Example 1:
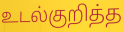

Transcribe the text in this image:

உடல்குறித்த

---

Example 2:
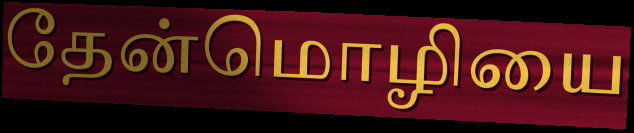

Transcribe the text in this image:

தேன்மொழியை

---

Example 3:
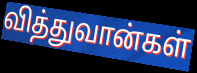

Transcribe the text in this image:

வித்துவான்கள்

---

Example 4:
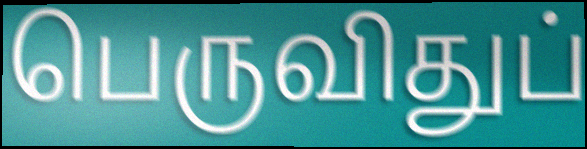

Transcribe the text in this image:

பெருவிதுப்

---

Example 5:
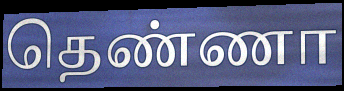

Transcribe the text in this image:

தெண்ணா